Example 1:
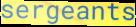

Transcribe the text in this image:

sergeants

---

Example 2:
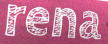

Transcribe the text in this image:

rena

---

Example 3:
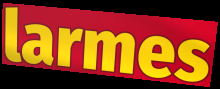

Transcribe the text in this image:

larmes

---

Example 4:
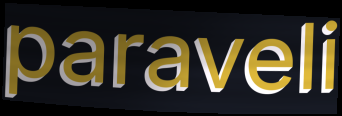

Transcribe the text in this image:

paraveli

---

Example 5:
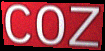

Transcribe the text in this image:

COZ